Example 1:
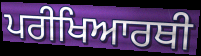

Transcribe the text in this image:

ਪਰੀਖਿਆਰਥੀ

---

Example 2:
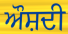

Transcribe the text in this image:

ਔਸ਼ਦੀ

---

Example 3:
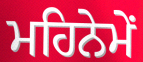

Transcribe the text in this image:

ਮਹਿਨੇਮੇਂ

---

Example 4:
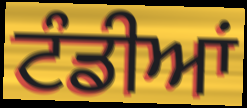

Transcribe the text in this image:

ਟੰਡੀਆਂ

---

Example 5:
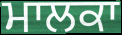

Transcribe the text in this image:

ਮਾਲਕਾ